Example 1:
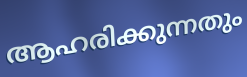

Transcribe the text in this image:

ആഹരിക്കുന്നതും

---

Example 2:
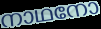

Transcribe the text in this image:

നാഥനോ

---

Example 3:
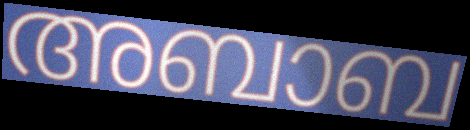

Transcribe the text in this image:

അബാബ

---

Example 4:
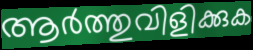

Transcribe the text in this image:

ആർത്തുവിളിക്കുക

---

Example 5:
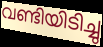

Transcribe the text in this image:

വണ്ടിയിടിച്ചു